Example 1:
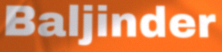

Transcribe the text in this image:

Baljinder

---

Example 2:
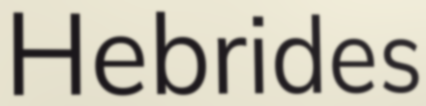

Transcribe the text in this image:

Hebrides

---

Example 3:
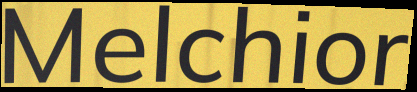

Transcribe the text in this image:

Melchior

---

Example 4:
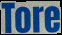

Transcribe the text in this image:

Tore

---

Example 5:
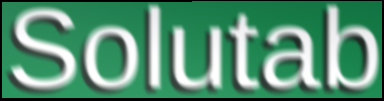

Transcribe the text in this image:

Solutab